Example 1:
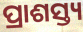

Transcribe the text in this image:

ପ୍ରାଶସ୍ତ୍ୟ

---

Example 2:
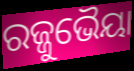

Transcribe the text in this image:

ରଜ୍ଜୁଭୈୟା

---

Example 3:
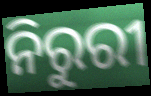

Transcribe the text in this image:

ନିରୁରୀ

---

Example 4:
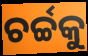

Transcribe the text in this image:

ଚର୍ଚ୍ଚକୁ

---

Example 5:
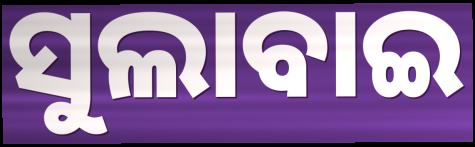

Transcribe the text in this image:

ସୁଲାବାଇ